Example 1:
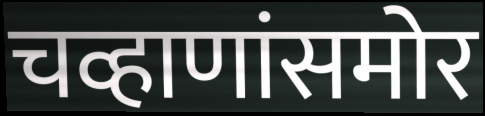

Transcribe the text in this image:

चव्हाणांसमोर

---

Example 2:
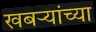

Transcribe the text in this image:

खबऱ्यांच्या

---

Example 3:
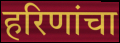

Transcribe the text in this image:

हरिणांचा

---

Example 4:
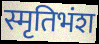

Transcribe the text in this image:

स्मृतिभंश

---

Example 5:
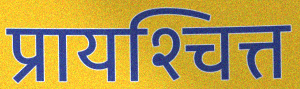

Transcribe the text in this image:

प्रायश्चित्त